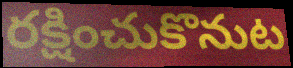
రక్షించుకొనుట